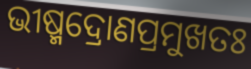
ଭୀଷ୍ମଦ୍ରୋଣପ୍ରମୁଖତଃ